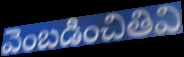
వెంబడించితివి